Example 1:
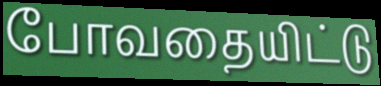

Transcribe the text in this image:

போவதையிட்டு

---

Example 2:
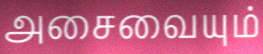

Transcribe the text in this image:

அசைவையும்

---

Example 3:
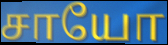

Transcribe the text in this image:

சாயோ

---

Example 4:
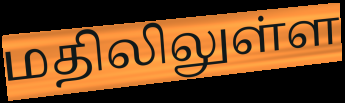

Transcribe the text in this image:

மதிலிலுள்ள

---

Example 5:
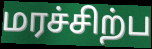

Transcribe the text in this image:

மரச்சிற்ப